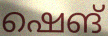
ഷെങ്